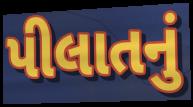
પીલાતનું